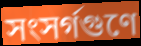
সংসর্গগুণে